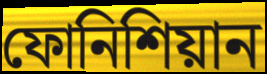
ফোনিশিয়ান